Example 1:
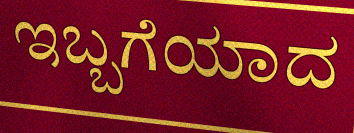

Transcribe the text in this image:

ಇಬ್ಬಗೆಯಾದ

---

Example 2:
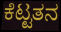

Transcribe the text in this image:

ಕೆಟ್ಟತನ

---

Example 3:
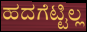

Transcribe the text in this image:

ಹದಗೆಟ್ಟಿಲ್ಲ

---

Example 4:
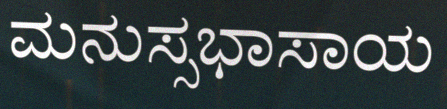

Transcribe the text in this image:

ಮನುಸ್ಸಭಾಸಾಯ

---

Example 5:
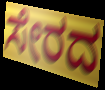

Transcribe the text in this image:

ಸೇರದ